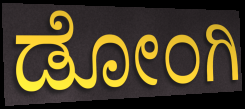
ಡೋಂಗಿ